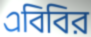
এবিবির